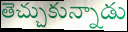
తెచ్చుకున్నాడు